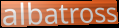
albatross